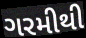
ગરમીથી